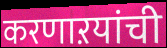
करणाऱयांची